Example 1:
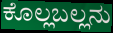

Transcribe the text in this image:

ಕೊಲ್ಲಬಲ್ಲನು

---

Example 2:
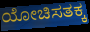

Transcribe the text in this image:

ಯೋಚಿಸತಕ್ಕ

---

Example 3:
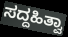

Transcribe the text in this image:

ಸದ್ದಹಿತ್ವಾ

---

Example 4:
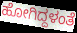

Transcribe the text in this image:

ಹೋಗಿದ್ದಳಂತೆ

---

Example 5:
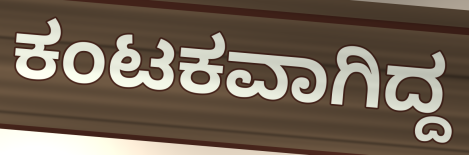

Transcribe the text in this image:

ಕಂಟಕವಾಗಿದ್ದ